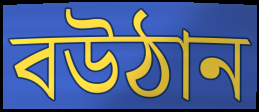
বউঠান